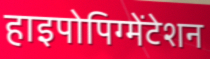
हाइपोपिग्मेंटेशन